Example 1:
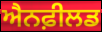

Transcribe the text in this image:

ਐਨਫ਼ੀਲਡ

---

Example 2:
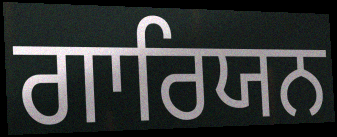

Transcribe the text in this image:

ਗਾਰਿਯਨ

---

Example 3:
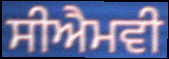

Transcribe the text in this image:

ਸੀਐਮਵੀ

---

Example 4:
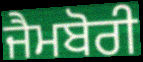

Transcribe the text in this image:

ਜੈਮਬੋਰੀ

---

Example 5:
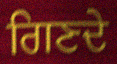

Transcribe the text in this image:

ਗਿਣਦੇ